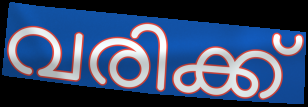
വരിക്ക്